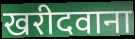
खरीदवाना